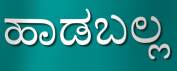
ಹಾಡಬಲ್ಲ